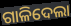
ଗାଳିଦେଲା